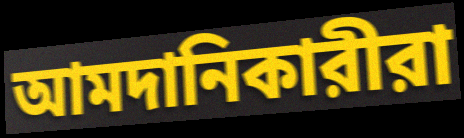
আমদানিকারীরা